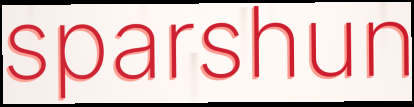
sparshun